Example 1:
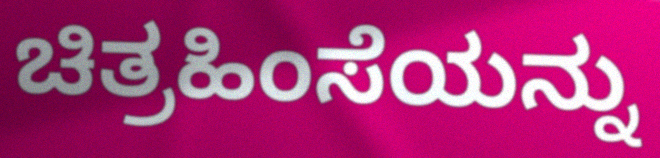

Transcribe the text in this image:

ಚಿತ್ರಹಿಂಸೆಯನ್ನು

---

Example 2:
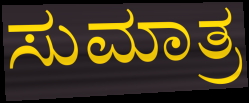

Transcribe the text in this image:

ಸುಮಾತ್ರ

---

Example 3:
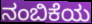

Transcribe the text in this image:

ನಂಬಿಕೆಯ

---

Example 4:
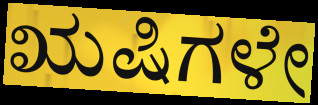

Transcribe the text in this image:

ಋಷಿಗಳೇ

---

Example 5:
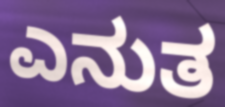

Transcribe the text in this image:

ಎನುತ